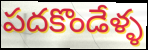
పదకొండేళ్ళ